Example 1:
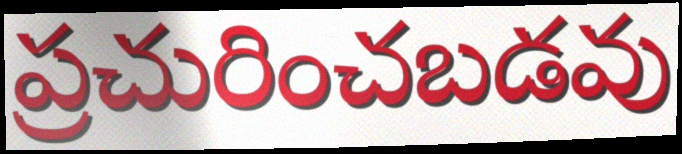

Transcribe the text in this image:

ప్రచురించబడవు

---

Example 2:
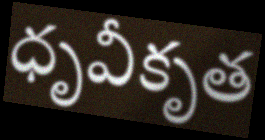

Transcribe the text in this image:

ధృవీకృత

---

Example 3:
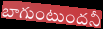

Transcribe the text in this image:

బాగుంటుందనీ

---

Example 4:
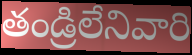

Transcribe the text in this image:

తండ్రిలేనివారి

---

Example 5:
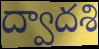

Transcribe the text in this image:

ద్వాదశి